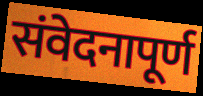
संवेदनापूर्ण